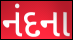
નંદના